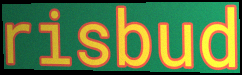
risbud